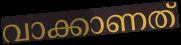
വാക്കാണത്